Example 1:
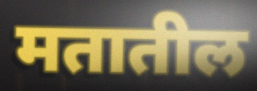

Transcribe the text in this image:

मतातील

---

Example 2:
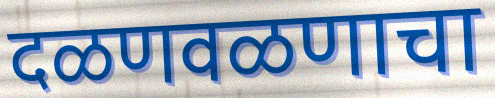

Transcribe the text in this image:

दळणवळणाचा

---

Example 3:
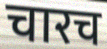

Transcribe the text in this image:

चारच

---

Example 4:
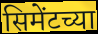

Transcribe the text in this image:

सिमेंटच्या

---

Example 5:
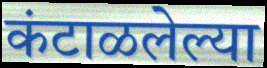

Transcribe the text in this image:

कंटाळलेल्या